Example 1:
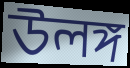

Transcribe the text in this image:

উলঙ্গ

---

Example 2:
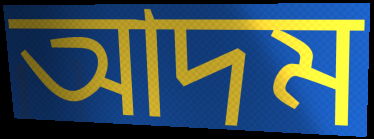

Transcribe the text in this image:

আদম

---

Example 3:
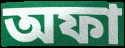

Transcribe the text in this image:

অফা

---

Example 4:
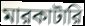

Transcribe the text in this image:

মারকাটারি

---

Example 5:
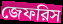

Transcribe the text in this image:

জেফরিস